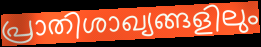
പ്രാതിശാഖ്യങ്ങളിലും